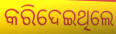
କରିଦେଇଥିଲେ